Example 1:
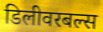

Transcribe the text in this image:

डिलीवरबल्स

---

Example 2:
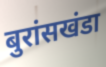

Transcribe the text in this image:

बुरांसखंडा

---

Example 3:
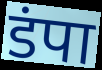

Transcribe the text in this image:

डंपा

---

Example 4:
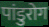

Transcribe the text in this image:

पांडुरोग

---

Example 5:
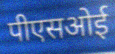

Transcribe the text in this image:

पीएसओई